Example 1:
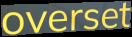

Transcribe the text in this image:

overset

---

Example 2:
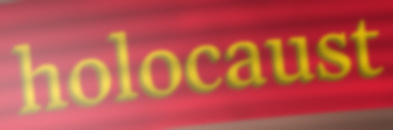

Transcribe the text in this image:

holocaust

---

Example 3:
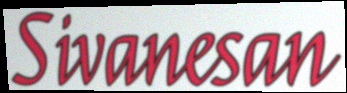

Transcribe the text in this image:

Sivanesan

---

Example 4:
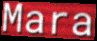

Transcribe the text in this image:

Mara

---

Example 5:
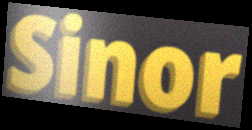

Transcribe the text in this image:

Sinor